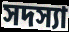
সদস্যা